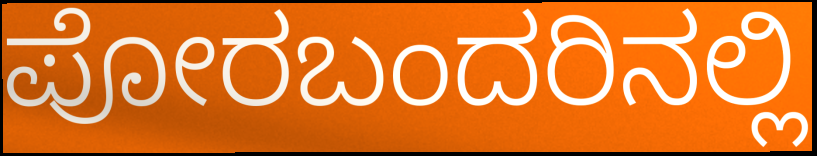
ಪೋರಬಂದರಿನಲ್ಲಿ